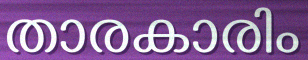
താരകാരിം